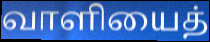
வாளியைத்